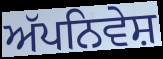
ਅੱਪਨਿਵੇਸ਼